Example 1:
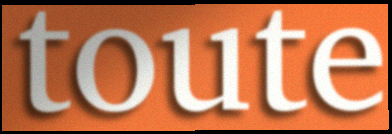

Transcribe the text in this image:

toute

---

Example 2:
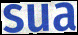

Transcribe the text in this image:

sua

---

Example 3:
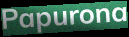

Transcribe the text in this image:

Papurona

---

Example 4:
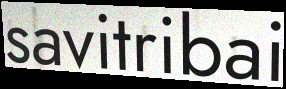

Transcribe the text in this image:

savitribai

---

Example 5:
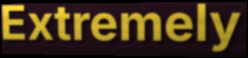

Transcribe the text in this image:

Extremely